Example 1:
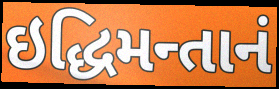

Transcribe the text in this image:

ઇદ્ધિમન્તાનં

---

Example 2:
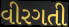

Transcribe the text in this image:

વીરગતી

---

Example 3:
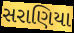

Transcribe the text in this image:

સરાણિયા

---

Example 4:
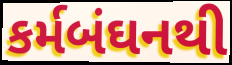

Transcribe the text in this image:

કર્મબંઘનથી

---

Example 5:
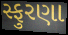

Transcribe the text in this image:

સ્ફુરણા